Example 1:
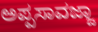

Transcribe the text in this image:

ಅಪ್ಪಸಾವಜ್ಜಾ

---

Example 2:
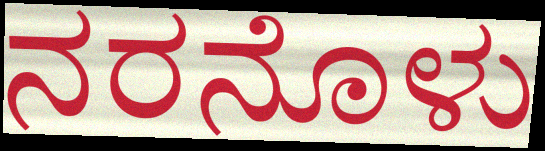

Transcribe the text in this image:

ನರನೊಳು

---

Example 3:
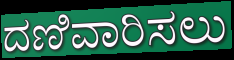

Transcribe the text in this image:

ದಣಿವಾರಿಸಲು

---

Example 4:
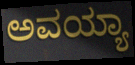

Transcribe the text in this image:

ಅವಯ್ಯಾ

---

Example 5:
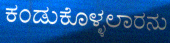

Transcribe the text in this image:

ಕಂಡುಕೊಳ್ಳಲಾರನು